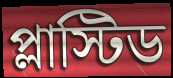
প্লাস্টিড